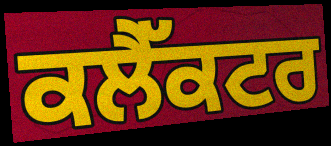
ਕਲੈੱਕਟਰ